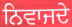
ਨਿਵਾਜਦੇ